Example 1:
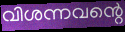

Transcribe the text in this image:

വിശന്നവന്റെ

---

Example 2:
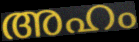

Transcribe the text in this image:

അഹം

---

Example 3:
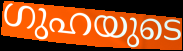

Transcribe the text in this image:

ഗുഹയുടെ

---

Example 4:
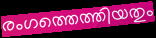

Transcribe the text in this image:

രംഗത്തെത്തിയതും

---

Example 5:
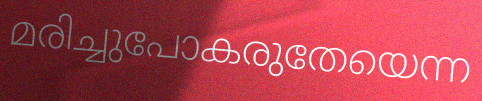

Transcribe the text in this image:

മരിച്ചുപോകരുതേയെന്ന